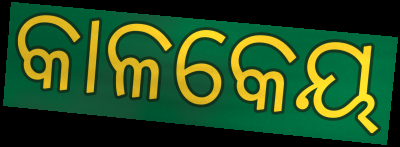
କାଳକେୟ